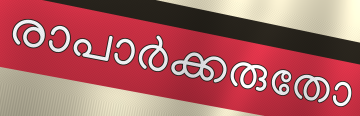
രാപാർക്കരുതോ